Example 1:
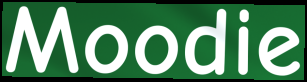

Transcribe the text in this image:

Moodie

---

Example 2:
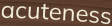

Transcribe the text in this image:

acuteness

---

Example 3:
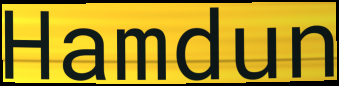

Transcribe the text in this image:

Hamdun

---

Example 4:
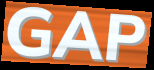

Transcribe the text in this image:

GAP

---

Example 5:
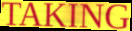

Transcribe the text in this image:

TAKING